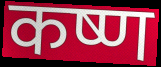
कष्ण